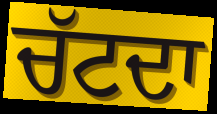
ਚੱਟਦਾ